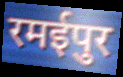
रमईपुर